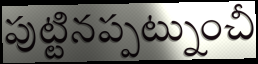
పుట్టినప్పట్నుంచీ